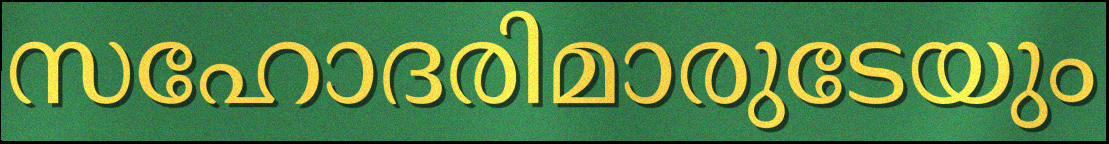
സഹോദരിമാരുടേയും